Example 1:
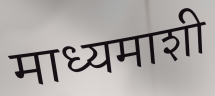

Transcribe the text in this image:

माध्यमाशी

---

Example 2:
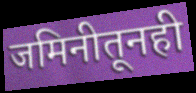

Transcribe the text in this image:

जमिनीतूनही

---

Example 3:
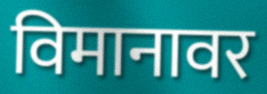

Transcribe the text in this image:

विमानावर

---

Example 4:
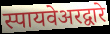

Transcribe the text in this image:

स्पायवेअरद्वारे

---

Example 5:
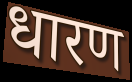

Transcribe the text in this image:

धारण